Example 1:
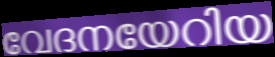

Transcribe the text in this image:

വേദനയേറിയ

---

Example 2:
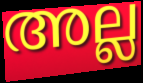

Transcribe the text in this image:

അല്ല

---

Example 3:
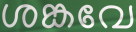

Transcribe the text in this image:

ശങ്കവേ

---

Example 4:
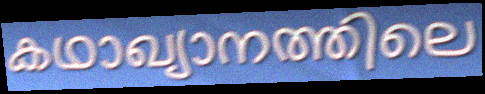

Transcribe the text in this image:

കഥാഖ്യാനത്തിലെ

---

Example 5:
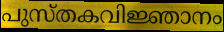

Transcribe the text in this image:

പുസ്തകവിജ്ഞാനം